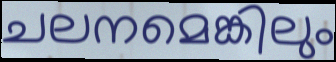
ചലനമെങ്കിലും